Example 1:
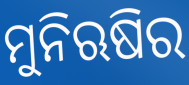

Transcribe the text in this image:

ମୁନିଋଷିର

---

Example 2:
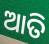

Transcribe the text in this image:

ଆତି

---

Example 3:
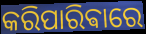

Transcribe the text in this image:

କରିପାରିଵାରେ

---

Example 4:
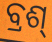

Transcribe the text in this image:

ବ୍ରଶ୍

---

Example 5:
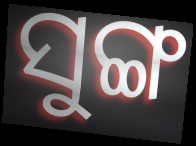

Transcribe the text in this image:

ସୁଙ୍ଗ